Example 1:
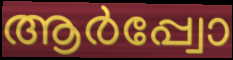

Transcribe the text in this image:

ആർപ്പ്വോ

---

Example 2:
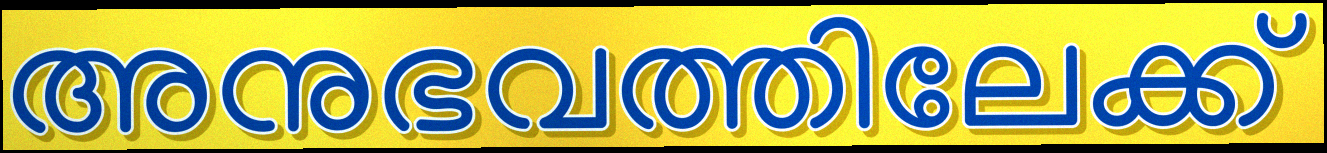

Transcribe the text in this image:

അനുഭവത്തിലേക്ക്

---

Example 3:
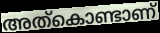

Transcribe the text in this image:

അത്കൊണ്ടാണ്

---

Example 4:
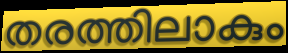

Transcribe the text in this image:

തരത്തിലാകും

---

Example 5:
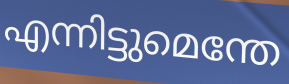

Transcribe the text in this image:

എന്നിട്ടുമെന്തേ